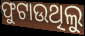
ଫୁଟାଉଥିଲୁ